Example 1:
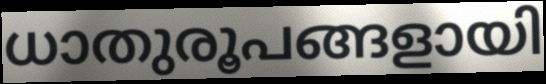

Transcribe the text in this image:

ധാതുരൂപങ്ങളായി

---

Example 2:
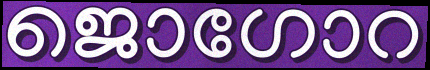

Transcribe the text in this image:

ജൊഗോറ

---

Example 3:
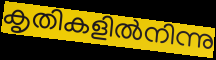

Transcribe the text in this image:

കൃതികളിൽനിന്നു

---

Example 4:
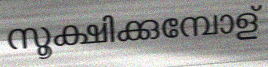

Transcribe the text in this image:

സൂക്ഷിക്കുമ്പോള്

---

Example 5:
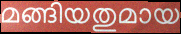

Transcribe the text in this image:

മങ്ങിയതുമായ